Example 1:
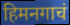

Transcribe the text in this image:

हिमनगाचं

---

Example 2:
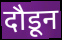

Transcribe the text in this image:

दौडून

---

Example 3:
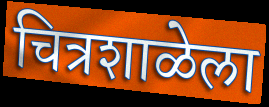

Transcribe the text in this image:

चित्रशाळेला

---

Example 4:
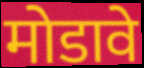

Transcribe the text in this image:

मोडावे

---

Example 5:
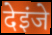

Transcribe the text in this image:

देइंजे